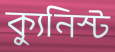
ক্যুনিস্ট